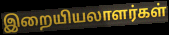
இறையியலாளர்கள்